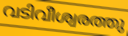
വടിവീശ്വരത്തു